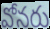
వోనరు